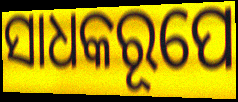
ସାଧକରୂପେ